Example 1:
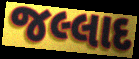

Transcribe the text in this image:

જલ્લાદ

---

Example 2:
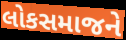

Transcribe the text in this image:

લોકસમાજને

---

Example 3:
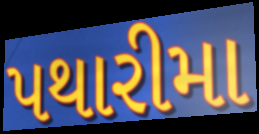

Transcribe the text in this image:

પથારીમા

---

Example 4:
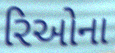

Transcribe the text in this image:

રિઓના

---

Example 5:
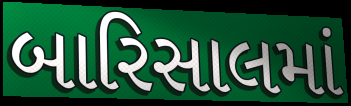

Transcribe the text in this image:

બારિસાલમાં